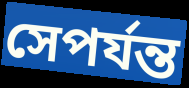
সেপর্যন্ত